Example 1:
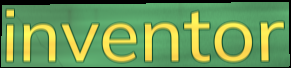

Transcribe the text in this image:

inventor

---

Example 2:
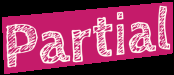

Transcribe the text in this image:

Partial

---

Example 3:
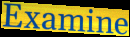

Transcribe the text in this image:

Examine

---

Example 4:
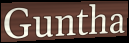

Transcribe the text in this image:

Guntha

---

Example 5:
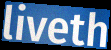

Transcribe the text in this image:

liveth